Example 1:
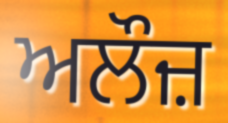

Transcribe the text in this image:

ਅਲੌਜ਼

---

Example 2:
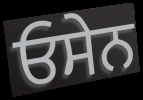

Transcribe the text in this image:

ਓਸੇਨ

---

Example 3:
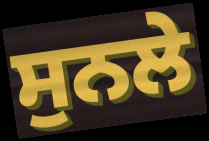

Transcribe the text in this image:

ਸੁਨਲੇ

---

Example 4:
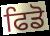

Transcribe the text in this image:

ਫਿਡੋ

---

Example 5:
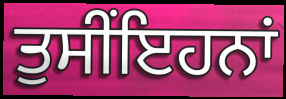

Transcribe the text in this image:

ਤੁਸੀਂਇਹਨਾਂ